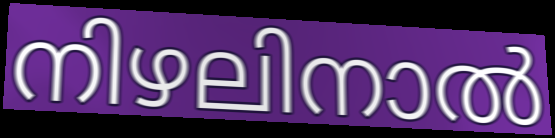
നിഴലിനാൽ